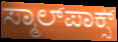
ಸ್ಮಾಲ್‌ಪಾಕ್ಸ್